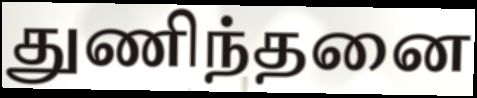
துணிந்தனை